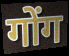
गोंग